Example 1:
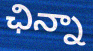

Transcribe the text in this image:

ఛిన్నా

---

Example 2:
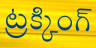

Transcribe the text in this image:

ట్రక్కింగ్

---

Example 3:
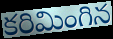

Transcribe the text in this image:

కరిమింగిన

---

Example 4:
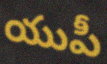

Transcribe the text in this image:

యుపీ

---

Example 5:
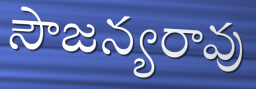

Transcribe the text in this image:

సౌజన్యరావు